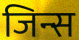
जिन्‍स